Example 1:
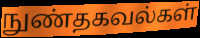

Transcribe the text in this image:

நுண்தகவல்கள்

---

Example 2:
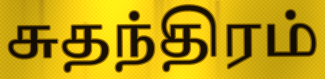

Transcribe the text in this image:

சுதந்திரம்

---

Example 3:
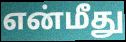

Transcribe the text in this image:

என்மீது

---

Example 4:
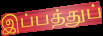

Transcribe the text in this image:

இப்பத்துப்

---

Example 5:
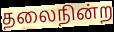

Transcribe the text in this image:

தலைநின்ற